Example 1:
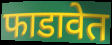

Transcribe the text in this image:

फाडावेत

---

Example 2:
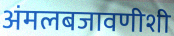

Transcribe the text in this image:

अंमलबजावणीशी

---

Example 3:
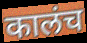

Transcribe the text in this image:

कालंच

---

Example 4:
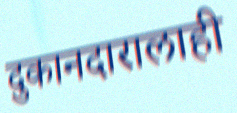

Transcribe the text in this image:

दुकानदारालाही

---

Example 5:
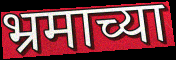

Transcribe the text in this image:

भ्रमाच्या